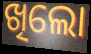
ଖିଲୋ